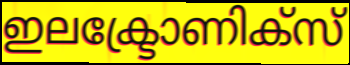
ഇലക്ട്രോണിക്സ്